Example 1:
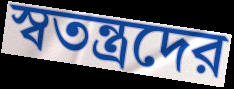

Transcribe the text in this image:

স্বতন্ত্রদের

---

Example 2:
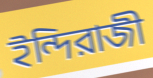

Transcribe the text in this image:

ইন্দিরাজী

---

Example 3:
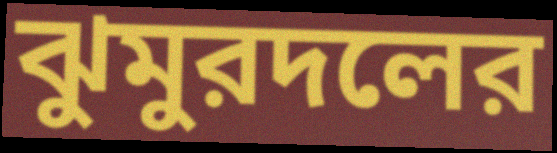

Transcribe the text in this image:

ঝুমুরদলের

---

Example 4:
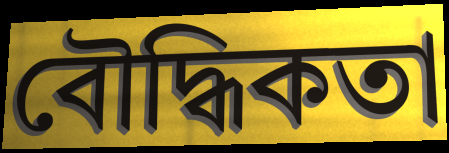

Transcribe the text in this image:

বৌদ্ধিকতা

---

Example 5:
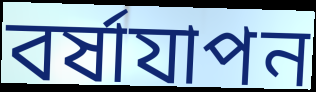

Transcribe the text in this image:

বর্ষাযাপন